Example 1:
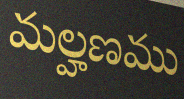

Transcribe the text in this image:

మల్హణము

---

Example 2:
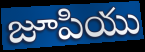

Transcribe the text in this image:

జూపియు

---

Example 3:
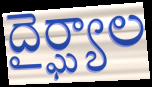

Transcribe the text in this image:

దైర్ఘ్యాల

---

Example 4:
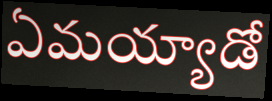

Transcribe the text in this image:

ఏమయ్యాడో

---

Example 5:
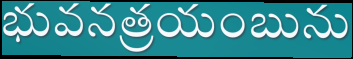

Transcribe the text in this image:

భువనత్రయంబును